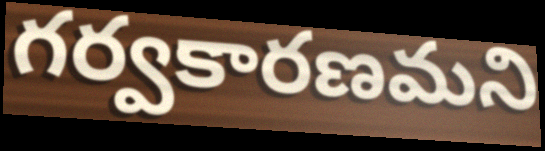
గర్వకారణమని